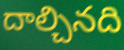
దాల్చినది